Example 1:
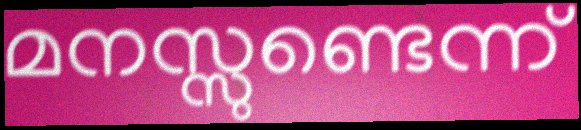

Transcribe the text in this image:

മനസ്സുണ്ടെന്ന്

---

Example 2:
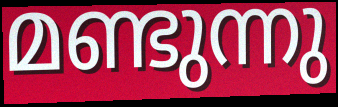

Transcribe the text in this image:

മണ്ടുന്നു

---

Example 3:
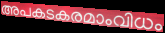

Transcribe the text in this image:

അപകടകരമാംവിധം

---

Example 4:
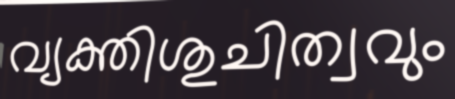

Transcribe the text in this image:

വ്യക്തിശുചിത്വവും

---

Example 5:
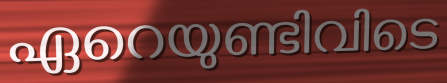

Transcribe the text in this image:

ഏറെയുണ്ടിവിടെ